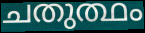
ചതുത്ഥം